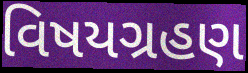
વિષયગ્રહણ